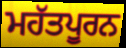
ਮਹੱਤਪੂਰਨ